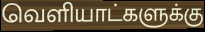
வெளியாட்களுக்கு